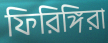
ফিরিঙ্গিরা